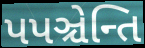
પપઞ્ચેન્તિ